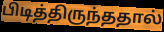
பிடித்திருந்ததால்